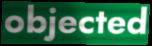
objected